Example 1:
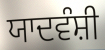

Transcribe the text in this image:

ਯਾਦਵੰਸ਼ੀ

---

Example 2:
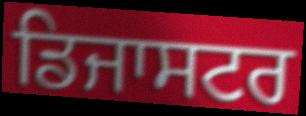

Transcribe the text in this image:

ਡਿਜਾਸਟਰ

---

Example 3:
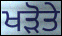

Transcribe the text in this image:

ਖੜੋਤੇ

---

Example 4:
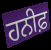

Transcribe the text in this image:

ਹਨੀਫ਼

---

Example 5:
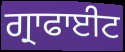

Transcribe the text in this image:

ਗ੍ਰਾਫਾਈਟ